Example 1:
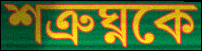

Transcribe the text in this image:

শত্রুঘ্নকে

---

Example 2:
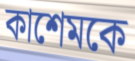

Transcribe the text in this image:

কাশেমকে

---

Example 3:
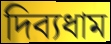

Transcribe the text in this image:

দিব্যধাম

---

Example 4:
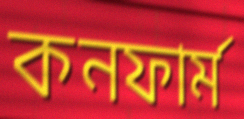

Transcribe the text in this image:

কনফার্ম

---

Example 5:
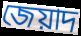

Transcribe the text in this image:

জেয়াদ